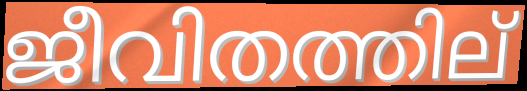
ജീവിതത്തില്